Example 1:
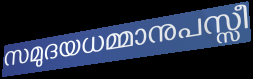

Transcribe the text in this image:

സമുദയധമ്മാനുപസ്സീ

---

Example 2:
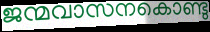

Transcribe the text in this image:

ജന്മവാസനകൊണ്ടു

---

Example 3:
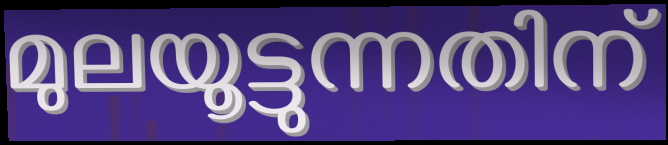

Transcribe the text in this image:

മുലയൂട്ടുന്നതിന്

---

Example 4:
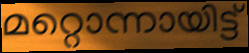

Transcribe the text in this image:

മറ്റൊന്നായിട്ട്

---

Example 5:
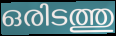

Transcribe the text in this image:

ഒരിടത്തു